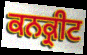
ਕਨਕ੍ਰੀਟ